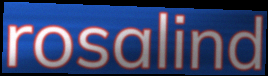
rosalind